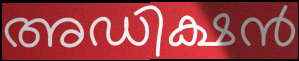
അഡിക്ഷൻ